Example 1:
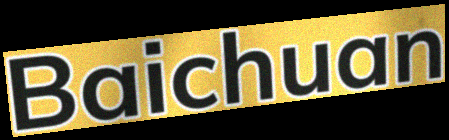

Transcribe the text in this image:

Baichuan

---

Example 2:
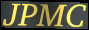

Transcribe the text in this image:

JPMC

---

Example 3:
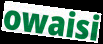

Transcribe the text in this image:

owaisi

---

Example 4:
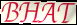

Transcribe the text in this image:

BHAT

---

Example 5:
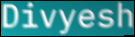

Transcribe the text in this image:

Divyesh